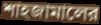
শাহজামালের